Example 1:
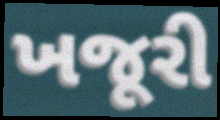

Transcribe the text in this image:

ખજૂરી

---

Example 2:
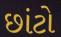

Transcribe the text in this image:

છાંટો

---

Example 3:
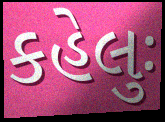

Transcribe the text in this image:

કહેલુઃ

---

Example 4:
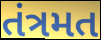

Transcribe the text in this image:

તંત્રમત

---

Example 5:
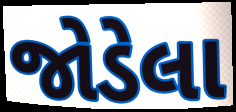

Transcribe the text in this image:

જોડેલા